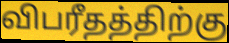
விபரீதத்திற்கு